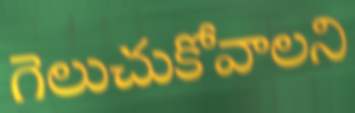
గెలుచుకోవాలని